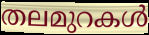
തലമുറകൾ